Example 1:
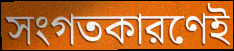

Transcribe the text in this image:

সংগতকারণেই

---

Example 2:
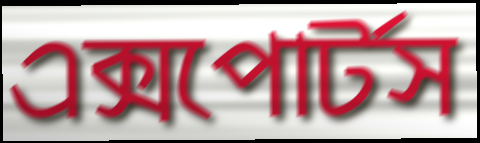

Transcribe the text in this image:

এক্সপোর্টস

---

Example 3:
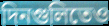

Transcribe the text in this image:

দিনগুলিতেও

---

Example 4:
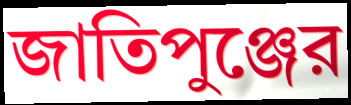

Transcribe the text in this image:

জাতিপুঞ্জের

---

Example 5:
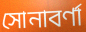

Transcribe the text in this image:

সোনাবর্ণা